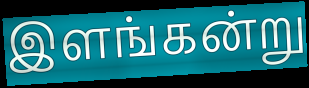
இளங்கன்று